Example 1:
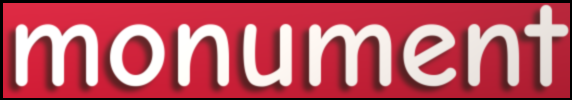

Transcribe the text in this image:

monument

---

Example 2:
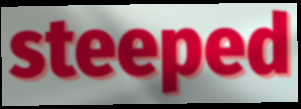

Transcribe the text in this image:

steeped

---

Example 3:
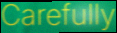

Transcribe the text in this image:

Carefully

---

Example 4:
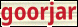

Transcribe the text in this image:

goorjar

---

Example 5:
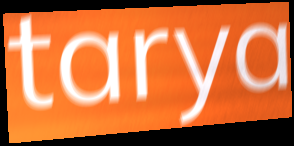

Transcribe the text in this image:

tarya